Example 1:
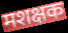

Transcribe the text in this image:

मशक्षक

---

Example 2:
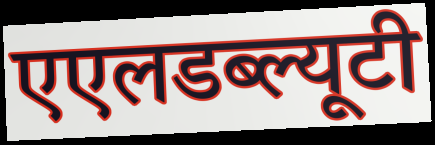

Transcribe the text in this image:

एएलडब्ल्यूटी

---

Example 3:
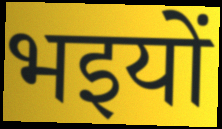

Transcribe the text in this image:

भइयों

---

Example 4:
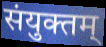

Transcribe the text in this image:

संयुक्तम्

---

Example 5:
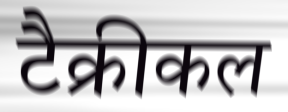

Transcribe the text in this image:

टैक्रीकल